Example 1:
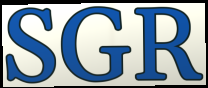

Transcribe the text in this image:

SGR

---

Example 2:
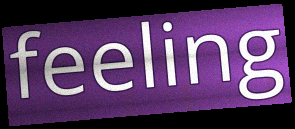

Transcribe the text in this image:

feeling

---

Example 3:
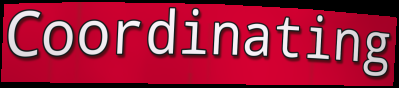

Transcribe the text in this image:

Coordinating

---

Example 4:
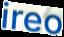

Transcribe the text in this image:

ireo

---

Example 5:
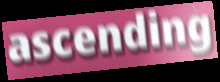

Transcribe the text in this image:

ascending